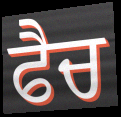
ਫੈਚ